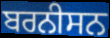
ਬਰਨੀਸਨ